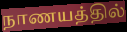
நாணயத்தில்